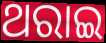
ଥରାଇ